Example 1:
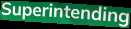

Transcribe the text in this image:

Superintending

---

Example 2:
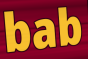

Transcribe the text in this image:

bab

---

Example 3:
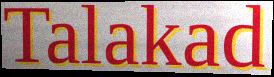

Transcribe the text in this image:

Talakad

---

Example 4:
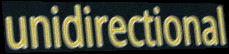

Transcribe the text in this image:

unidirectional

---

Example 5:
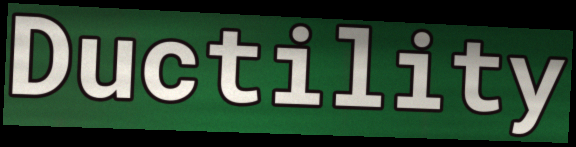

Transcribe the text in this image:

Ductility